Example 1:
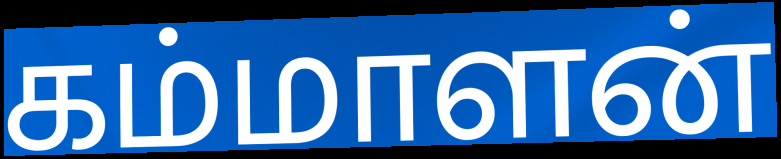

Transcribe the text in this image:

கம்மாளன்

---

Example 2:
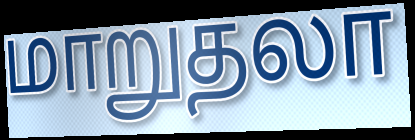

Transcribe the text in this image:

மாறுதலா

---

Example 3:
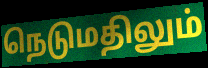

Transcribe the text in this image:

நெடுமதிலும்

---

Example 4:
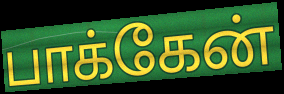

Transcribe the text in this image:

பாக்கேன்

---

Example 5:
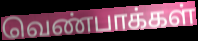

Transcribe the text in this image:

வெண்பாக்கள்